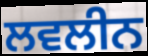
ਲਵਲੀਨ